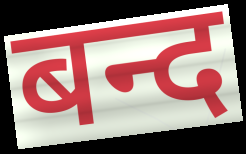
बन्द